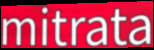
mitrata